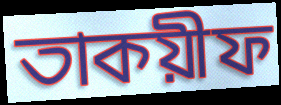
তাকয়ীফ